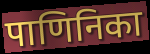
पाणिनिका